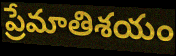
ప్రేమాతిశయం